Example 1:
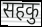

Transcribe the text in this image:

सहकु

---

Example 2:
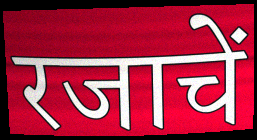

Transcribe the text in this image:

रजाचें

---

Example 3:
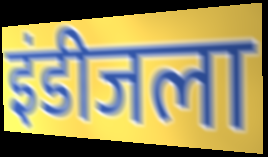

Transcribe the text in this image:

इंडीजला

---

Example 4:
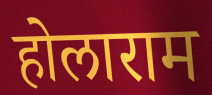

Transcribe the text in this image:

होलाराम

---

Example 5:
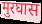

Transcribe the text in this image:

मुरघास